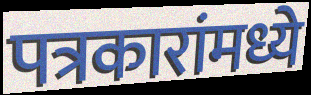
पत्रकारांमध्ये